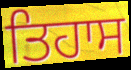
ਤਿਹਾਸ